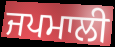
ਜਪਮਾਲੀ